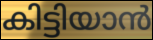
കിട്ടിയാൻ